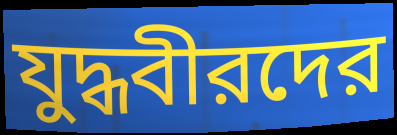
যুদ্ধবীরদের